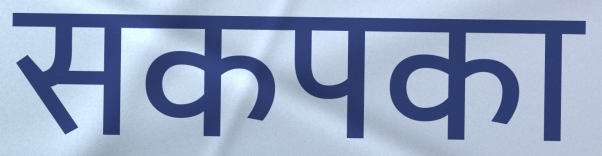
सकपका